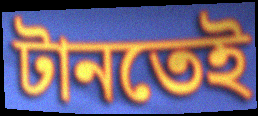
টানতেই